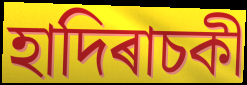
হাদিৰাচকী